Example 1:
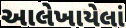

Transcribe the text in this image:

આલેખાયેલાં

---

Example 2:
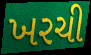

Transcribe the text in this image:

ખરચી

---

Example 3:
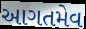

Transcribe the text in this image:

આગતમેવ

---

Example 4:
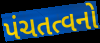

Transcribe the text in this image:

પંચતત્વનો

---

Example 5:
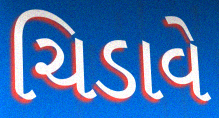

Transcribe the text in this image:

ચિડાવે